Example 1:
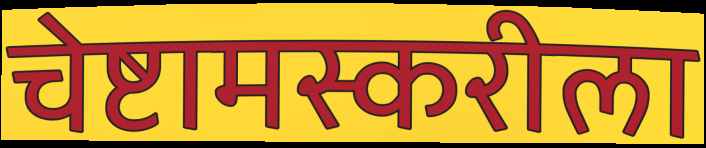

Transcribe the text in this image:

चेष्टामस्करीला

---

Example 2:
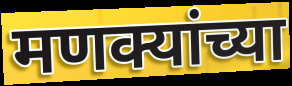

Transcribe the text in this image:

मणक्यांच्या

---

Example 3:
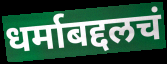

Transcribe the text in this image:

धर्माबद्दलचं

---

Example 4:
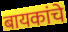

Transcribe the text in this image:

बायकांचे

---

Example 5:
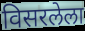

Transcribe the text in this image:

विसरलेला